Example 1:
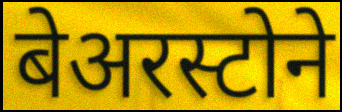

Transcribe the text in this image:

बेअरस्टोने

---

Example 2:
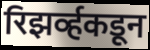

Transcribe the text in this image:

रिझर्व्हकडून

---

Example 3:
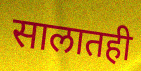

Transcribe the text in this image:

सालातही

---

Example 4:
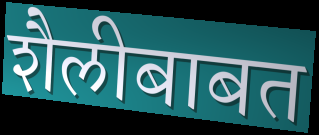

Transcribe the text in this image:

शैलीबाबत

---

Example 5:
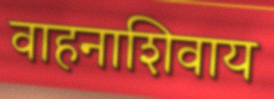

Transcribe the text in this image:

वाहनाशिवाय